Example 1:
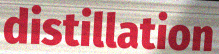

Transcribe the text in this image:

distillation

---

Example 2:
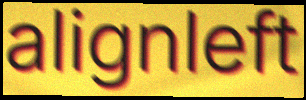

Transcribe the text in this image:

alignleft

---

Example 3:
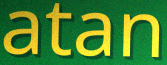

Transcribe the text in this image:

atan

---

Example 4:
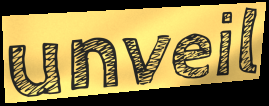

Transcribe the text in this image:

unveil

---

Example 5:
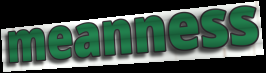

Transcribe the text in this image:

meanness